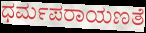
ಧರ್ಮಪರಾಯಣತೆ